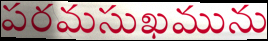
పరమసుఖమును